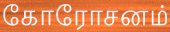
கோரோசனம்